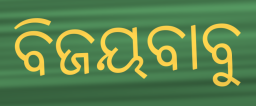
ବିଜୟବାବୁ